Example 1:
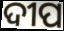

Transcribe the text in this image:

ଦୀପ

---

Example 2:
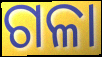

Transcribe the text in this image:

ଗଳା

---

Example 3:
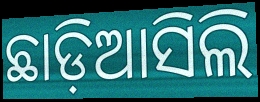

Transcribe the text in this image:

ଛାଡ଼ିଆସିଲି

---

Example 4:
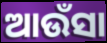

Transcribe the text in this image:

ଆଉଁସା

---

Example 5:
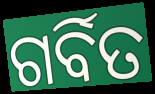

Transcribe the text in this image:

ଗର୍ବିତ